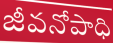
జీవనోపాధి